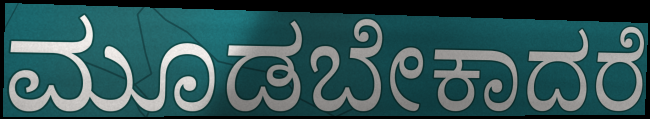
ಮೂಡಬೇಕಾದರೆ